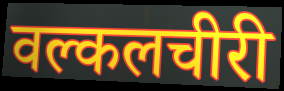
वल्कलचीरी